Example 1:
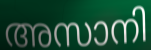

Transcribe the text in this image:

അസാനി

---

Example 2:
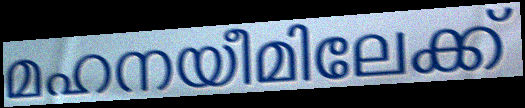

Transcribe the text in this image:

മഹനയീമിലേക്ക്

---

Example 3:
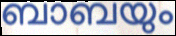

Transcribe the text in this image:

ബാബയും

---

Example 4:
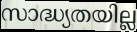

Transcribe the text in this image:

സാദ്ധ്യതയില്ല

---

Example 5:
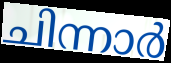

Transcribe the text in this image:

ചിന്നാർ